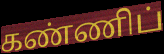
கண்ணிப்